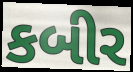
કબીર